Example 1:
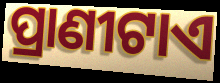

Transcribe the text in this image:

ପ୍ରାଣୀଟାଏ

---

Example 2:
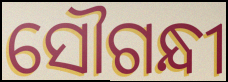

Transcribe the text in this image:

ସୌଗନ୍ଧୀ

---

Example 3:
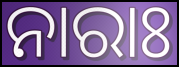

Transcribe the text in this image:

ନାରାଃ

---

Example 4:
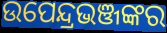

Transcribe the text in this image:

ଉପେନ୍ଦ୍ରଭଞ୍ଜଙ୍କର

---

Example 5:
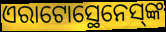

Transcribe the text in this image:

ଏରାଟୋସ୍ଥେନେସ୍‌ଙ୍କ